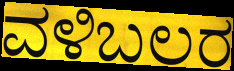
ವಳಿಬಲರ